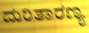
ದುರಿತಾರಣ್ಯ